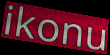
ikonu